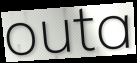
outa